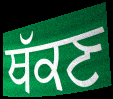
ਥੱਕਣ